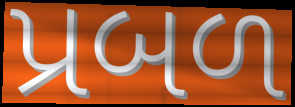
પ્રબળ